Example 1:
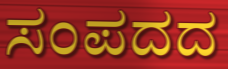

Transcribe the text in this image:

ಸಂಪದದ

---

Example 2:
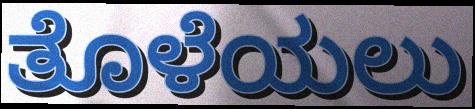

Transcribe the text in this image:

ತೊಳೆಯಲು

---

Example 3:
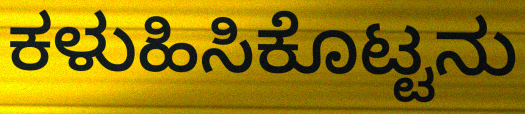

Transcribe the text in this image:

ಕಳುಹಿಸಿಕೊಟ್ಟನು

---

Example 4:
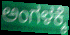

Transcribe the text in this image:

ಅಂಗಳಕ್ಕೆ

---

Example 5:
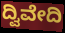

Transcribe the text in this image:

ದ್ವಿವೇದಿ